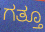
ಗತ್ತೂ